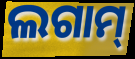
ଲଗାମ୍